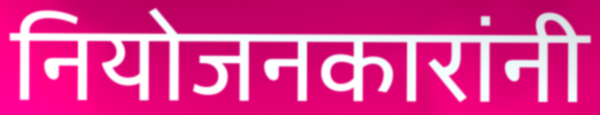
नियोजनकारांनी